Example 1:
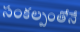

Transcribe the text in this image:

సంకల్పంతోనే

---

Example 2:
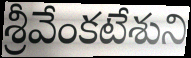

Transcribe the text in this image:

శ్రీవేంకటేశుని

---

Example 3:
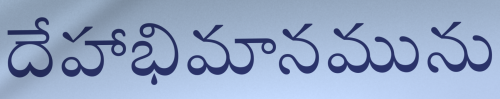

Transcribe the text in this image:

దేహాభిమానమును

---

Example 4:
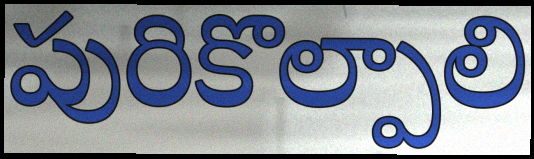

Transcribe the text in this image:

పురికొల్పాలి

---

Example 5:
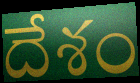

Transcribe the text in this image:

దేశం